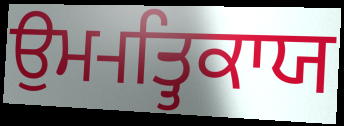
ਉਮ੍ਮਤ੍ਤਿਕਾਯ